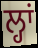
ਲ੍ਹਾਂ